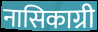
नासिकाग्री